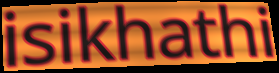
isikhathi